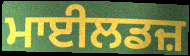
ਮਾਈਲਡਜ਼